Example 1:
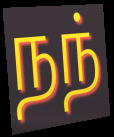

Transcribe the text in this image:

நந்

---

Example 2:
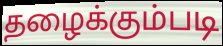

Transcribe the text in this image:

தழைக்கும்படி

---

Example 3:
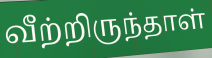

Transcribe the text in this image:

வீற்றிருந்தாள்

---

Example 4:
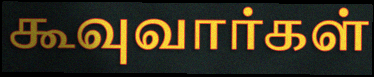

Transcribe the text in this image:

கூவுவார்கள்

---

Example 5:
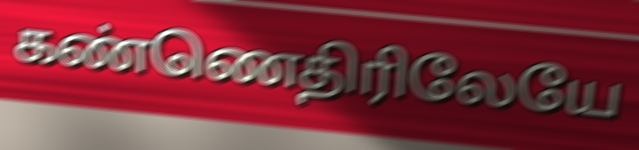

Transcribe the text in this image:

கண்ணெதிரிலேயே